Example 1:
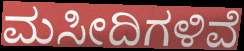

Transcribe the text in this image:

ಮಸೀದಿಗಳಿವೆ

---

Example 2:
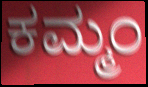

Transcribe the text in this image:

ಕಮ್ಮಂ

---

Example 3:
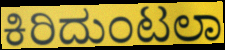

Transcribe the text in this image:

ಕಿರಿದುಂಟಲಾ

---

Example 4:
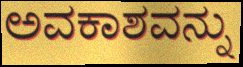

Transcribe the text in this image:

ಅವಕಾಶವನ್ನು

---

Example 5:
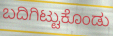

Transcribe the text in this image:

ಬದಿಗಿಟ್ಟುಕೊಂಡು